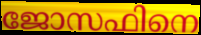
ജോസഫിനെ